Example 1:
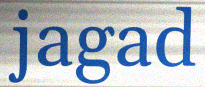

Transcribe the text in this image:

jagad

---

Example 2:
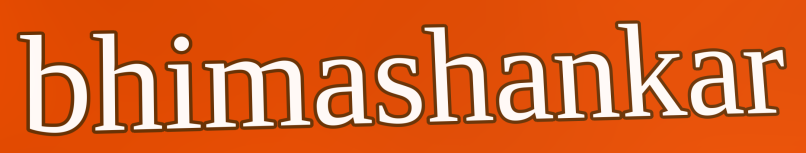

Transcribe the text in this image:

bhimashankar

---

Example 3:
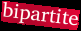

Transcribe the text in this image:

bipartite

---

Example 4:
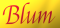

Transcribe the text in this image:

Blum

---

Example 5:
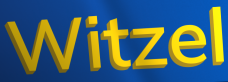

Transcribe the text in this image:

Witzel